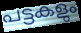
പട്ടകളും